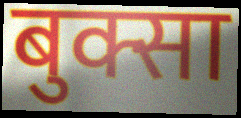
बुक्सा